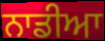
ਨਾਡੀਆ